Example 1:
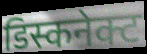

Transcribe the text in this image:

डिस्कनेक्ट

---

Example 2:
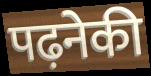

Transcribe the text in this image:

पढ़नेकी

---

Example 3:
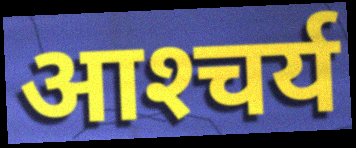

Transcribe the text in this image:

आश्‍चर्य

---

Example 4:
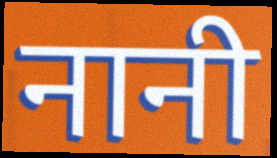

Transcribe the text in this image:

नानी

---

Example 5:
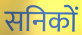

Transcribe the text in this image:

सनिकों